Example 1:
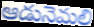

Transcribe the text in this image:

ఆడునెమలి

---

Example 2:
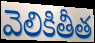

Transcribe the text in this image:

వెలికితీత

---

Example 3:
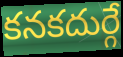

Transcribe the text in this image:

కనకదుర్గే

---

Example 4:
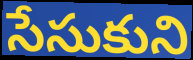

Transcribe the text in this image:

సేసుకుని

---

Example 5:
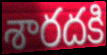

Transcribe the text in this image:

శారదకి